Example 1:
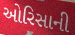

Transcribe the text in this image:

ઓરિસાની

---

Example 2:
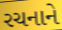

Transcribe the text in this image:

રચનાને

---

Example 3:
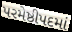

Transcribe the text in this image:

પરમેષ્ઠીપદમાં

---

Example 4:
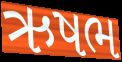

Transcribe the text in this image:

ઋષભ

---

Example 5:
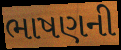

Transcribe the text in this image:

ભાષણની